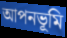
আপনভূমি